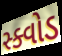
સ્ક્વોડ